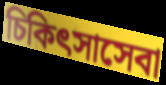
চিকিৎসাসেবা